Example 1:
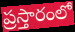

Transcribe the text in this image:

ప్రస్తారంలో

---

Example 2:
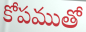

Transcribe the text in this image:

కోపముతో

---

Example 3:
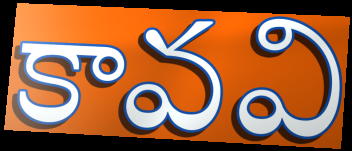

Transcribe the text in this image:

కావవి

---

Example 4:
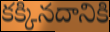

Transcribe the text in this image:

కక్కినదానికి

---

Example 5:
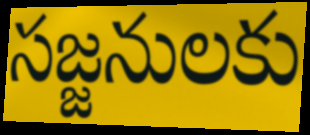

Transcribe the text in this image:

సజ్జనులకు